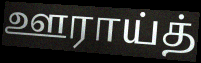
ஊராய்த்